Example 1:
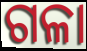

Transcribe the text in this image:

ଗଳା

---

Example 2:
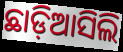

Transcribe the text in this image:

ଛାଡ଼ିଆସିଲି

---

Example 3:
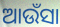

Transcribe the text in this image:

ଆଉଁସା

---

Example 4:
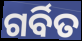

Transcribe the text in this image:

ଗର୍ବିତ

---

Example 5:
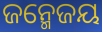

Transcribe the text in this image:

ଜନ୍ମେଜୟ